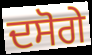
ਦਸੋਗੇ